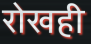
रोखही